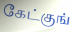
கேட்குங்